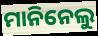
ମାନିନେଲୁ